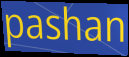
pashan